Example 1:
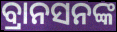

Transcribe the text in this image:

ବ୍ରାନସନଙ୍କ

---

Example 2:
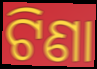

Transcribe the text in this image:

ଟିଣା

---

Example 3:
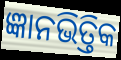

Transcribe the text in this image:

ଜ୍ଞାନଭିତ୍ତିକ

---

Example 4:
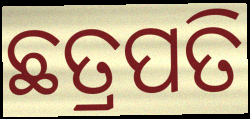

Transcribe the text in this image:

ଛତ୍ରପତି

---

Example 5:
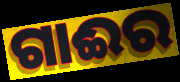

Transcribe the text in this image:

ଗାଈର